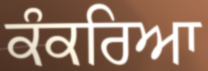
ਕੰਕਰਿਆ